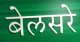
बेलसरे